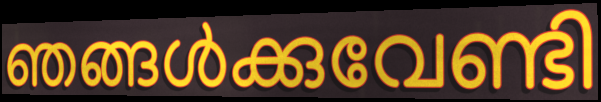
ഞങ്ങൾക്കുവേണ്ടി